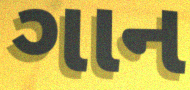
ગાન